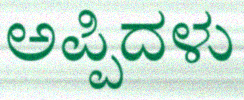
ಅಪ್ಪಿದಳು